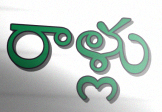
రాళ్లు